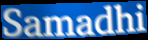
Samadhi